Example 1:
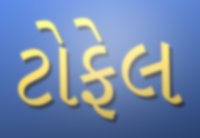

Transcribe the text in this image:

ટોફેલ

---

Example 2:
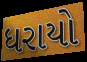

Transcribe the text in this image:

ધરાયો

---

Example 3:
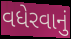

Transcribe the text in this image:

વધેરવાનું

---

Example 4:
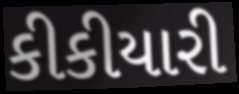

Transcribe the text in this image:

કીકીયારી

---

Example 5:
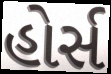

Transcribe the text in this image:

હોર્સ